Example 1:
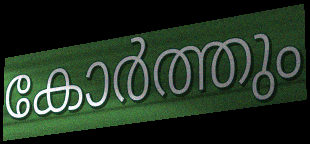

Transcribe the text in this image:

കോർത്തും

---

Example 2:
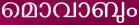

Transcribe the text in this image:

മൊവാബും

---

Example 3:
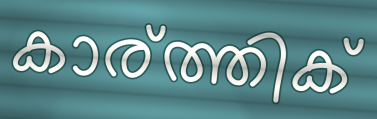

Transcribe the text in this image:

കാര്ത്തിക്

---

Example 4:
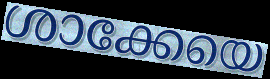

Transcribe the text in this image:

ശാക്കേയെ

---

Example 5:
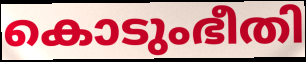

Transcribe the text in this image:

കൊടുംഭീതി